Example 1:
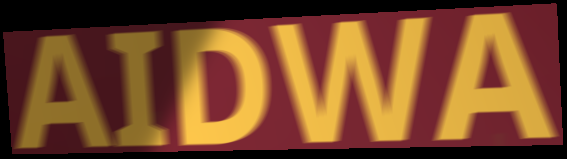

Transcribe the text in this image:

AIDWA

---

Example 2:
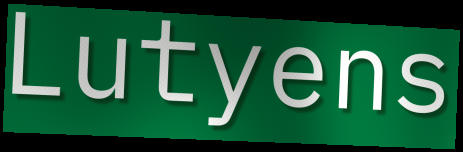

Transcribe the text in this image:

Lutyens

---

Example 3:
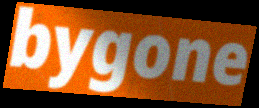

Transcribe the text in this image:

bygone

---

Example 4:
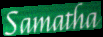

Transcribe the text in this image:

Samatha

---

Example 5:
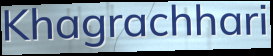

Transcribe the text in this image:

Khagrachhari